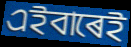
এইবাৰেই